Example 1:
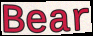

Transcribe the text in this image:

Bear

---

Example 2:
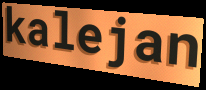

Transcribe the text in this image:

kalejan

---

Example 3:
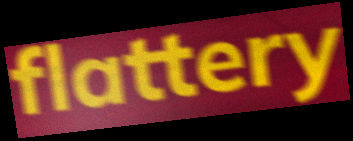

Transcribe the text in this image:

flattery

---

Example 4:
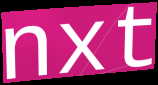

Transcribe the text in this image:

nxt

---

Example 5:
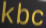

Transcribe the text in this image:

kbc